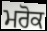
ਮਰੋਕ